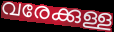
വരേക്കുള്ള